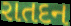
રાતદન